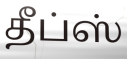
தீப்ஸ்